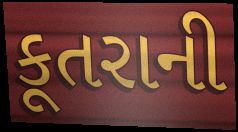
કૂતરાની